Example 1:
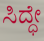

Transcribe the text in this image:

ಸಿದ್ಧೇ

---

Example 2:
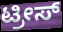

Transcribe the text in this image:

ಟ್ರೀಸ್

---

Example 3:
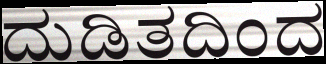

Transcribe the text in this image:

ದುಡಿತದಿಂದ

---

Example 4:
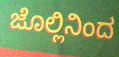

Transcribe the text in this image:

ಜೊಲ್ಲಿನಿಂದ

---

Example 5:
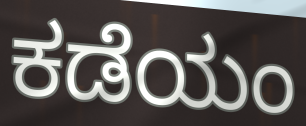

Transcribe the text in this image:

ಕಡೆಯಂ